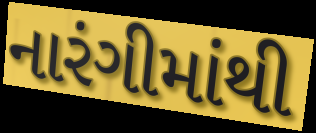
નારંગીમાંથી